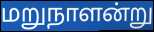
மறுநாளன்று